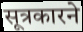
सूत्रकारने